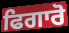
ਫਿਗਾਰੋ